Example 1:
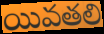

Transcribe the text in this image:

యివతలి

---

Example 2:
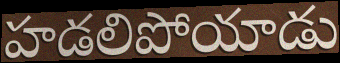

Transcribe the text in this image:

హడలిపోయాడు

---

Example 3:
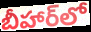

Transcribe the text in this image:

బీహార్‌లో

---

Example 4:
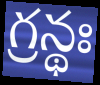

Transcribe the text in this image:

గ్రన్థః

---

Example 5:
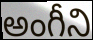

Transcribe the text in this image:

అంగీని